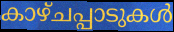
കാഴ്ചപ്പാടുകൾ